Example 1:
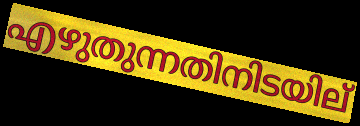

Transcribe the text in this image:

എഴുതുന്നതിനിടയില്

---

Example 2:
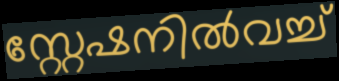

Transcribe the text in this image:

സ്റ്റേഷനിൽവച്ച്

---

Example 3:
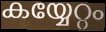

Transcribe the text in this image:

കയ്യേറ്റം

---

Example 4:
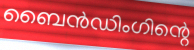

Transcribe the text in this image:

ബൈൻഡിംഗിന്റെ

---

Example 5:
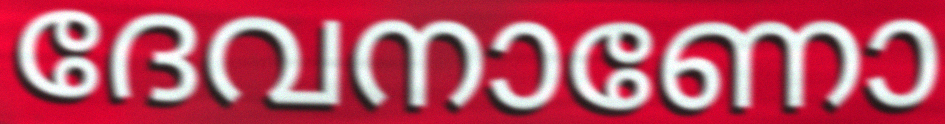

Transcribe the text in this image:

ദേവനാണോ